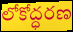
లోకోద్ధరణ